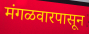
मंगळवारपासून